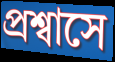
প্রশ্বাসে